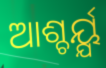
ଆଶ୍ଚର୍ୟ୍ଯ